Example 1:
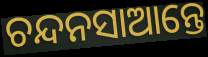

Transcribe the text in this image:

ଚନ୍ଦନସାଆନ୍ତେ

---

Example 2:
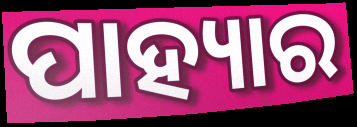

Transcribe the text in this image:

ପାହ୍ୟାର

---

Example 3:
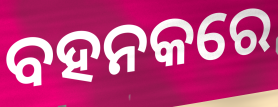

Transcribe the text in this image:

ବହନକରେ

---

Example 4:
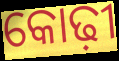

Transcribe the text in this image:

କୋଢ଼ୀ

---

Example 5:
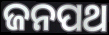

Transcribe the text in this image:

ଜନପଥ